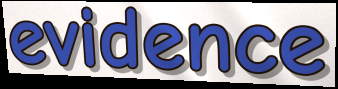
evidence